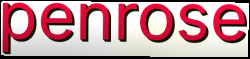
penrose